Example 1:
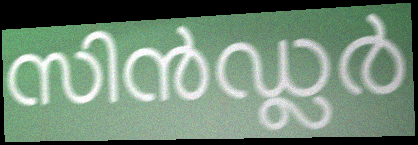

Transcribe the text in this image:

സിൻഡ്ലർ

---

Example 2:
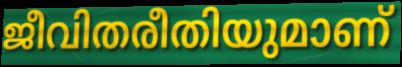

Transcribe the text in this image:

ജീവിതരീതിയുമാണ്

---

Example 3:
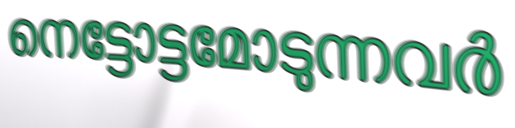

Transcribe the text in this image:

നെട്ടോട്ടമോടുന്നവർ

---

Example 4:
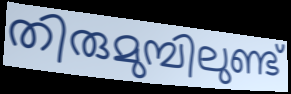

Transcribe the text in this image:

തിരുമുമ്പിലുണ്ട്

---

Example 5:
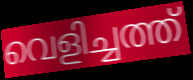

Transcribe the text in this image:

വെളിച്ചത്ത്